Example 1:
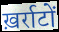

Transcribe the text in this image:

ख़र्राटों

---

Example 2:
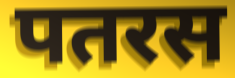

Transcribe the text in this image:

पतरस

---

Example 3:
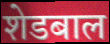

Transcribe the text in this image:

शेडबाल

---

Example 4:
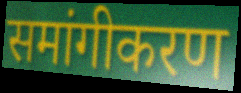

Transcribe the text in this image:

समांगीकरण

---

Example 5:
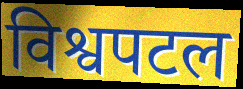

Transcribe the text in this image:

विश्वपटल